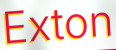
Exton